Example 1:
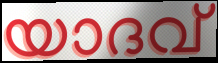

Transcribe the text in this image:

യാദവ്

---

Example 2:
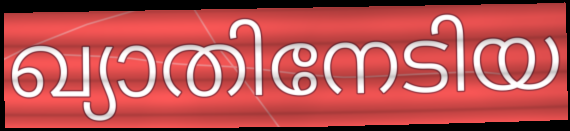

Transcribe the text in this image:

ഖ്യാതിനേടിയ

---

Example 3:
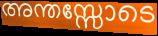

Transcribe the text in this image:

അന്തസ്സോടെ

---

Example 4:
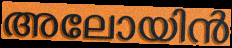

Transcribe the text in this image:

അലോയിൻ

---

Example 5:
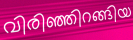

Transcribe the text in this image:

വിരിഞ്ഞിറങ്ങിയ